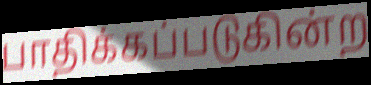
பாதிக்கப்படுகின்ற